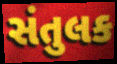
સંતુલક